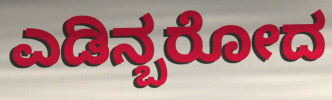
ಎಡಿನ್ಬರೋದ